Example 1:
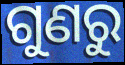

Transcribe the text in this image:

ଗୁଣରୁ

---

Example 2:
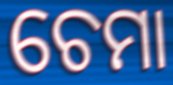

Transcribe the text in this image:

ଚେମା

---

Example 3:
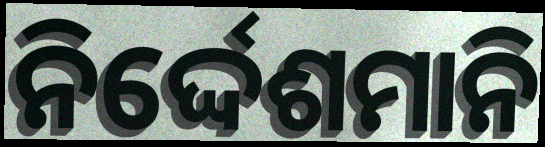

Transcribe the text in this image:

ନିର୍ଦ୍ଦେଶମାନି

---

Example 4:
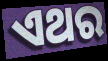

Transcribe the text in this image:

ଏଥର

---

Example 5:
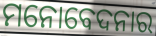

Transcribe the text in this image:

ମନୋବେଦନାର